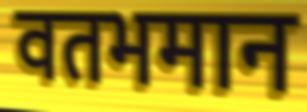
वतभमान